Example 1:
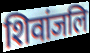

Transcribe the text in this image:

शिवांजलि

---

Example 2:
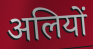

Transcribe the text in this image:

अलियों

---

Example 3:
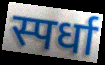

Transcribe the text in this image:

स्पर्धा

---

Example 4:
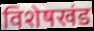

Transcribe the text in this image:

विशेषखंड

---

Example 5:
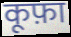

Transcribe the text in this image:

कूफ़ा